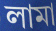
লামা